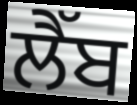
ਲੈੱਬ